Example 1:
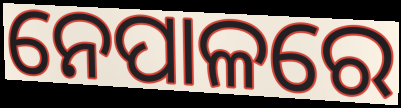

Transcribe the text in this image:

ନେପାଳରେ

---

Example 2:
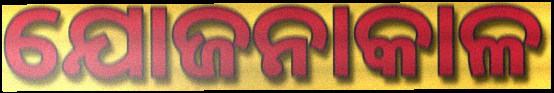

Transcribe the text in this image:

ଯୋଜନାକାଳ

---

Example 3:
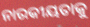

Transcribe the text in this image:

ନାରକୀୟତାକୁ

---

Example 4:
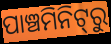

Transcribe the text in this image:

ପାଞ୍ଚମିନିଟ୍‌ରୁ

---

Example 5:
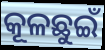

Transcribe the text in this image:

କୂଳଛୁଇଁ